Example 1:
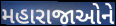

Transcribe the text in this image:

મહારાજાઓને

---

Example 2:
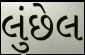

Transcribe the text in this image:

લુંછેલ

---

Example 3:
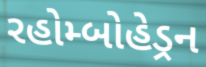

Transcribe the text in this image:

રહોમ્બોહેડ્રન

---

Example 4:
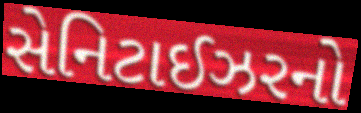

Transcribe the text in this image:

સેનિટાઈઝરનો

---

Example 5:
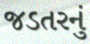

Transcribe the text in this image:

જડતરનું